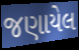
જણાયેલ